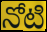
నోటి